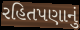
રહિતપણાનું